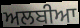
ਅਲਬੀਆ